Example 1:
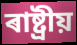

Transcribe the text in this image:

ৰাষ্ট্ৰীয়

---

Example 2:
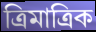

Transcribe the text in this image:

ত্ৰিমাত্ৰিক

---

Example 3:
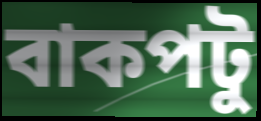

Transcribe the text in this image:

বাকপটু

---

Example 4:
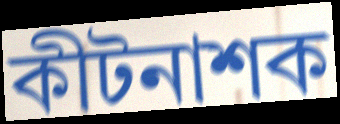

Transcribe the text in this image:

কীটনাশক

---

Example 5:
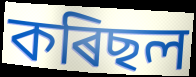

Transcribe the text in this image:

কৰিছল